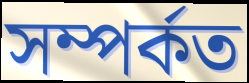
সম্পৰ্কত